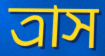
ত্রাস